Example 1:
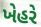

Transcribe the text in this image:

ખેહરે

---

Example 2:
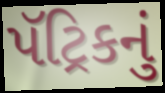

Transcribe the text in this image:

પૅટ્રિકનું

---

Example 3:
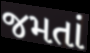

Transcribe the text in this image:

જમતાં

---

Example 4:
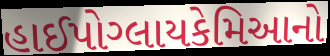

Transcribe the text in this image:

હાઈપોગ્લાયકેમિઆનો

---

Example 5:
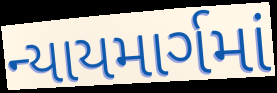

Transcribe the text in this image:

ન્યાયમાર્ગમાં